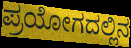
ಪ್ರಯೋಗದಲ್ಲಿನ